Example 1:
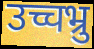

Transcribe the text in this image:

उच्चभ्रु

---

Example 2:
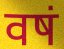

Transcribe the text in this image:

वषं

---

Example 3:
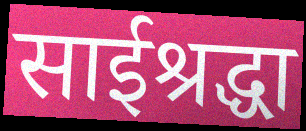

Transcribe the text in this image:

साईश्रद्धा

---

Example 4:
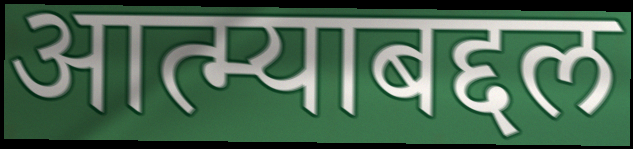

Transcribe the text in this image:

आत्म्याबद्दल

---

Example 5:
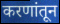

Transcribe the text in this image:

करणांतून